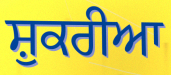
ਸ਼ੁਕਰੀਆ